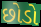
છોડો